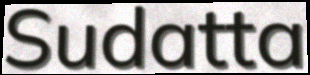
Sudatta